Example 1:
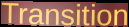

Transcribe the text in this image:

Transition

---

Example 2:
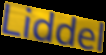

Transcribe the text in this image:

Liddel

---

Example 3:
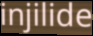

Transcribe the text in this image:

injilide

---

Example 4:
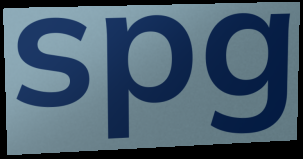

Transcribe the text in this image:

spg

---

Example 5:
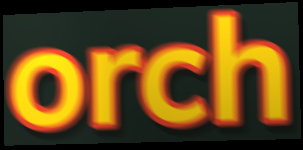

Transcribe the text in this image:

orch